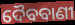
ଦୈବବାଣୀ